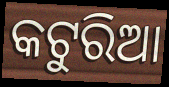
କଟୁରିଆ